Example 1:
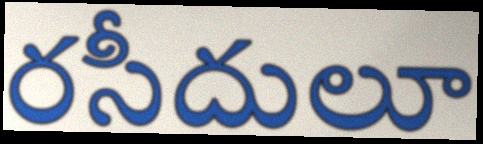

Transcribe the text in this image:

రసీదులూ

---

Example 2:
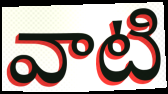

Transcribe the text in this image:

వాటి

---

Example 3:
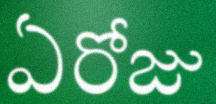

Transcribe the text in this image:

ఏరోజు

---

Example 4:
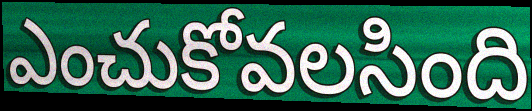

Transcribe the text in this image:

ఎంచుకోవలసింది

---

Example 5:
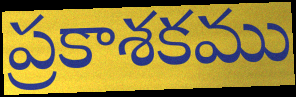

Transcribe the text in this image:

ప్రకాశకము